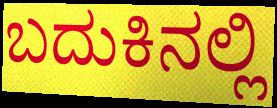
ಬದುಕಿನಲ್ಲಿ